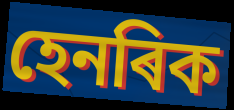
হেনৰিক